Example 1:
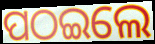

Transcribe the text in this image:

ପଠଇଲେ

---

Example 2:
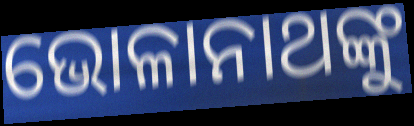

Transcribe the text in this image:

ଭୋଳାନାଥଙ୍କୁ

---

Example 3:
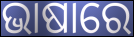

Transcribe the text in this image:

ଭାଷାରେ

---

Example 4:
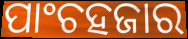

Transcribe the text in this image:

ପାଂଚହଜାର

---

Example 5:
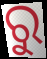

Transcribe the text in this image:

ରୁ